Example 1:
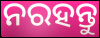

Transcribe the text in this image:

ନରହନ୍ତୁ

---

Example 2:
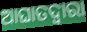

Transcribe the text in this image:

ଆଘାତଦ୍ୱାରା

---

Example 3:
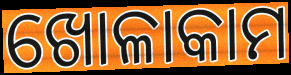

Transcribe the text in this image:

ଖୋଳାକାମ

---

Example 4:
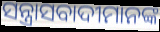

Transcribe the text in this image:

ସନ୍ତ୍ରାସବାଦୀମାନଙ୍କ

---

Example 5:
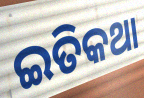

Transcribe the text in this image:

ଇତିକଥା